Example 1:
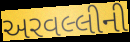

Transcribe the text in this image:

અરવલ્લીની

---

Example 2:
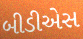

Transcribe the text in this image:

બીડીએસ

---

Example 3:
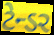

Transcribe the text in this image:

ટેન્ડર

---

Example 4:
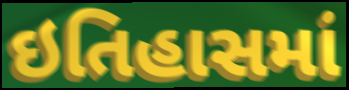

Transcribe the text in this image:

ઇતિહાસમાં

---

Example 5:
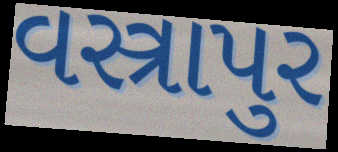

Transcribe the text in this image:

વસ્ત્રાપુર